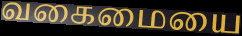
வகைமையை